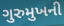
ગુરુમુખની